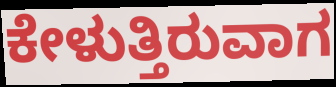
ಕೇಳುತ್ತಿರುವಾಗ